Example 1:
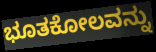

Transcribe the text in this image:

ಭೂತಕೋಲವನ್ನು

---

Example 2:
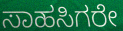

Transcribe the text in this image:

ಸಾಹಸಿಗರೇ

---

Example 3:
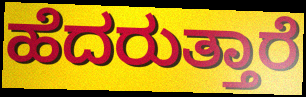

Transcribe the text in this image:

ಹೆದರುತ್ತಾರೆ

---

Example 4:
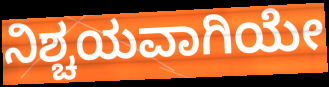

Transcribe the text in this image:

ನಿಶ್ಚಯವಾಗಿಯೇ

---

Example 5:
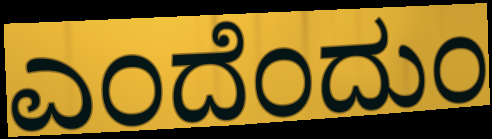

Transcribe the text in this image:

ಎಂದೆಂದುಂ